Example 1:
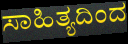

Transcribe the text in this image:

ಸಾಹಿತ್ಯದಿಂದ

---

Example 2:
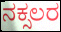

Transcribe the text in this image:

ನಕ್ಸಲರ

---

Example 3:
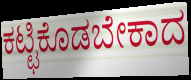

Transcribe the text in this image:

ಕಟ್ಟಿಕೊಡಬೇಕಾದ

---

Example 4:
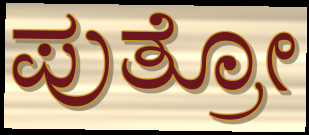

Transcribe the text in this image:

ಪುತ್ರೋ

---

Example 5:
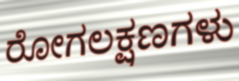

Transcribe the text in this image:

ರೋಗಲಕ್ಷಣಗಳು